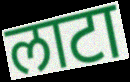
लाटा